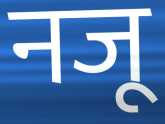
नजू